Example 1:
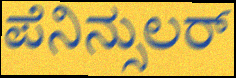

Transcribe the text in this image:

ಪೆನಿನ್ಸುಲರ್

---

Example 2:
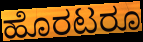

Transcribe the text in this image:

ಹೊರಟರೂ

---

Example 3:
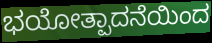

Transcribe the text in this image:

ಭಯೋತ್ಪಾದನೆಯಿಂದ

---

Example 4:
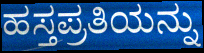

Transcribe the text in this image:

ಹಸ್ತಪ್ರತಿಯನ್ನು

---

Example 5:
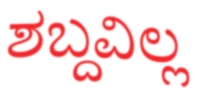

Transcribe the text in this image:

ಶಬ್ದವಿಲ್ಲ